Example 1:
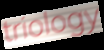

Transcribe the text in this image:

triology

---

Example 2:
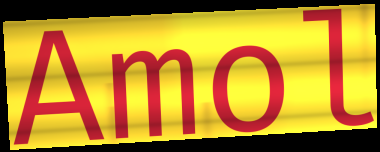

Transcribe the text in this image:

Amol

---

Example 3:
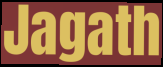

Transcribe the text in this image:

Jagath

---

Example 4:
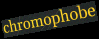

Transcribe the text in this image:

chromophobe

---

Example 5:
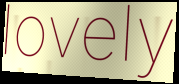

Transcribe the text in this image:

lovely